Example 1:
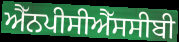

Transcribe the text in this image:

ਐੱਨਪੀਸੀਐੱਸਸੀਬੀ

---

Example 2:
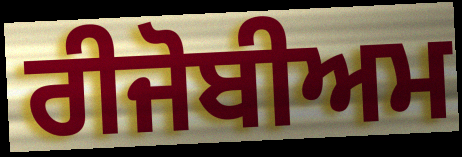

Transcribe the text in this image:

ਰੀਜੋਬੀਅਮ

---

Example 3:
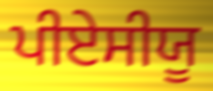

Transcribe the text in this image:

ਪੀਏਸੀਯੂ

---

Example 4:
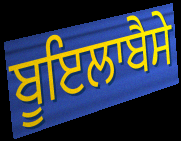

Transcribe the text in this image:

ਬੂਇਲਾਬੈਸੇ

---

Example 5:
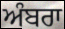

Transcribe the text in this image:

ਅੰਬਰਾ